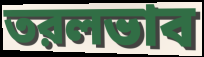
তরলভাব